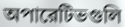
অপারেটিভগুলি